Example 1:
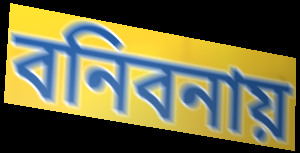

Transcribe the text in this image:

বনিবনায়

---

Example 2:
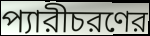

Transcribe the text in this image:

প্যারীচরণের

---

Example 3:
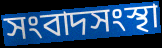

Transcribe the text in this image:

সংবাদসংস্থা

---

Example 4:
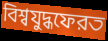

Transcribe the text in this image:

বিশ্বযুদ্ধফেরত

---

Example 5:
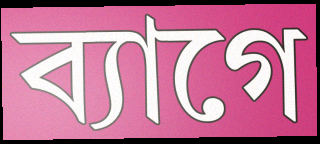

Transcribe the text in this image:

ব্যাগে